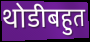
थोडीबहुत